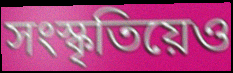
সংস্কৃতিয়েও